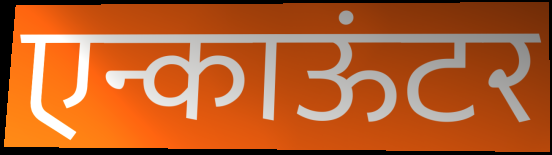
एन्काऊंटर